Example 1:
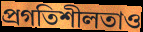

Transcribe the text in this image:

প্রগতিশীলতাও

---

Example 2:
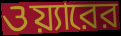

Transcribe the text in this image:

ওয়্যারের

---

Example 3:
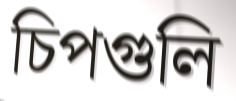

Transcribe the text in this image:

চিপগুলি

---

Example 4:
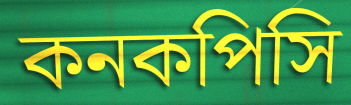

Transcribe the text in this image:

কনকপিসি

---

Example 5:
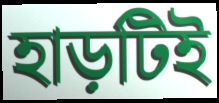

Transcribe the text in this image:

হাড়টিই